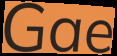
Gae